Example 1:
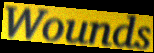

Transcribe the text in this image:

Wounds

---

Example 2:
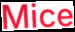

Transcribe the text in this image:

Mice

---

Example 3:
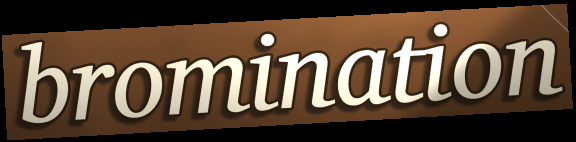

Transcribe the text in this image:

bromination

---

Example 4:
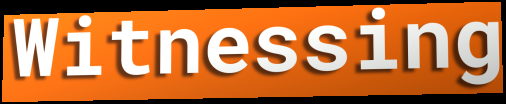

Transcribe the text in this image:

Witnessing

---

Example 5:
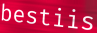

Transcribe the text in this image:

bestiis